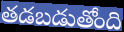
తడబడుతోంది